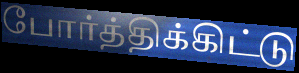
போர்த்திக்கிட்டு